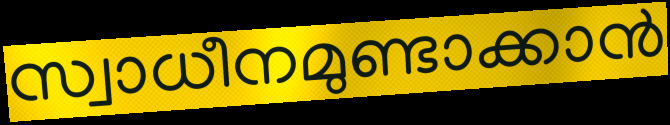
സ്വാധീനമുണ്ടാക്കാൻ